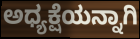
ಅಧ್ಯಕ್ಷೆಯನ್ನಾಗಿ